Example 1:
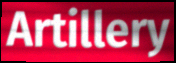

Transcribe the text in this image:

Artillery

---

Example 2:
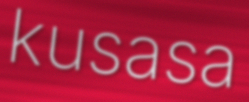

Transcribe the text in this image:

kusasa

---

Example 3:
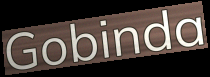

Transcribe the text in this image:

Gobinda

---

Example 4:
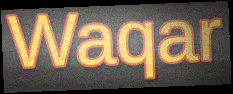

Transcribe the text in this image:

Waqar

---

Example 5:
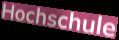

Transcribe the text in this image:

Hochschule